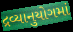
દ્રવ્યાનુયોગમાં